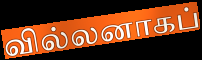
வில்லனாகப்